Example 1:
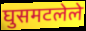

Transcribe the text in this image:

घुसमटलेले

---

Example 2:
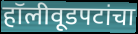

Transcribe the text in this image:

हॉलीवूडपटांचा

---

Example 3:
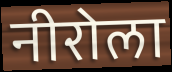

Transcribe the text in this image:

नीरोला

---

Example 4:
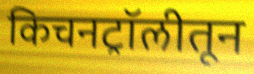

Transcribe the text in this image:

किचनट्रॉलीतून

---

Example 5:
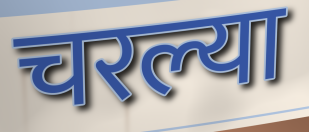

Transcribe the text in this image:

चरल्या